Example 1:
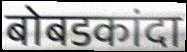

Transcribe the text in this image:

बोबडकांदा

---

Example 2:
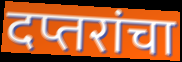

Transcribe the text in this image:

दप्तरांचा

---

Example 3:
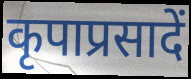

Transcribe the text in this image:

कृपाप्रसादें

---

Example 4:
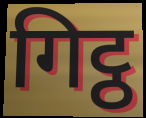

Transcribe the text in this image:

गिट्ठ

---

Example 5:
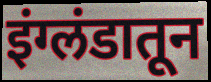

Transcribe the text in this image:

इंग्लंडातून